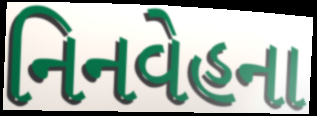
નિનવેહના